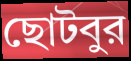
ছোটবুর